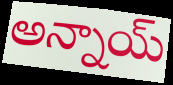
అన్నాయ్